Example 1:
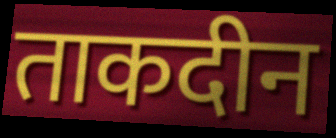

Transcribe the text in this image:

ताकदीन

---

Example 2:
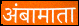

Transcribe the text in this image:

अंबामाता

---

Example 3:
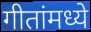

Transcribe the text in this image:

गीतांमध्ये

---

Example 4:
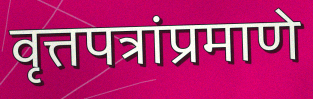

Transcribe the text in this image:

वृत्तपत्रांप्रमाणे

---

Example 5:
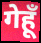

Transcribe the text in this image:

गेहूँ